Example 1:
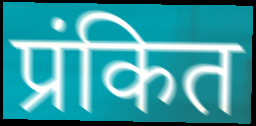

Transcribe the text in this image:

प्रंकित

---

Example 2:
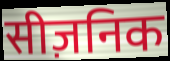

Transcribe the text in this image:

सीज़निक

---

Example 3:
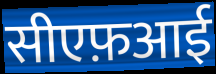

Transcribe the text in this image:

सीएफ़आई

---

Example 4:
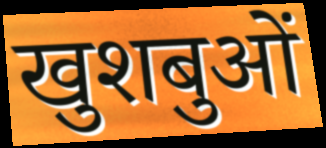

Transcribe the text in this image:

खुशबुओं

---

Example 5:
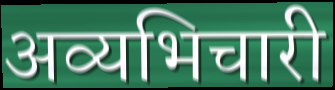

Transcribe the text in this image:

अव्यभिचारी